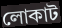
লোকাট